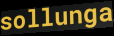
sollunga